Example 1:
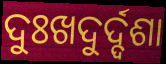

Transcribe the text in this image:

ଦୁଃଖଦୁର୍ଦ୍ଦଶା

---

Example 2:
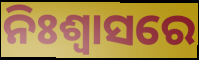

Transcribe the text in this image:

ନିଃଶ୍ଵାସରେ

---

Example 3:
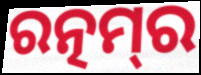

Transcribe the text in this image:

ରତ୍ନମ୍‌ର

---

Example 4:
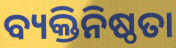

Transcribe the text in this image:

ବ୍ୟକ୍ତିନିଷ୍ଠତା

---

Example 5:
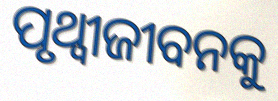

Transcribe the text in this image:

ପୃଥ୍ୱୀଜୀବନକୁ